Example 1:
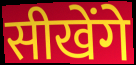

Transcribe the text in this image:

सीखेंगे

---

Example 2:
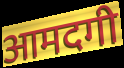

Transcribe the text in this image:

आमदगी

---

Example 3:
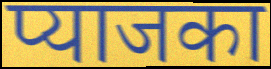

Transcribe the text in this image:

प्याजका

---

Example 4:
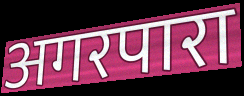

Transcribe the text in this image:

अगरपारा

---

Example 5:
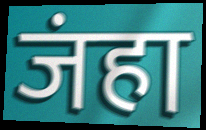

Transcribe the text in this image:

जंहा